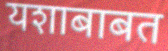
यशाबाबत